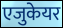
एजुकेयर